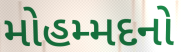
મોહમ્મદનો